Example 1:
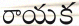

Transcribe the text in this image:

రాయక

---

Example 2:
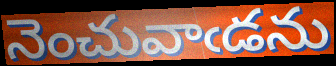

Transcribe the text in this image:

నెంచువాఁడను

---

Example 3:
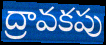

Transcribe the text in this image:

ద్రావకపు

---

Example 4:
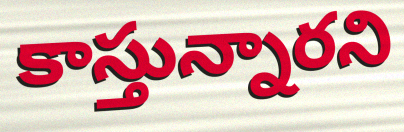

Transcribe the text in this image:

కాస్తున్నారని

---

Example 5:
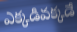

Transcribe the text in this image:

ఎక్కడివక్కడే